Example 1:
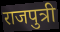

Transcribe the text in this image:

राजपुत्री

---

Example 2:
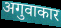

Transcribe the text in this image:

अगुवाकार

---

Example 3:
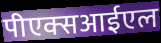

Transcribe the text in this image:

पीएक्सआईएल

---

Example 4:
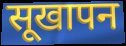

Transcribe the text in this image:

सूखापन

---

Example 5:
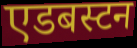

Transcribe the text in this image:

एडबस्टन